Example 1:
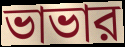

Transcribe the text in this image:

ভাভার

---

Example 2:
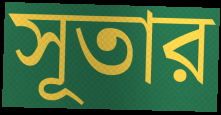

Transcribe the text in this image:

সূতার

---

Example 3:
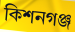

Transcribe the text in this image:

কিশনগঞ্জ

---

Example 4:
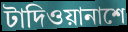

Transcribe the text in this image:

টাদিওয়ানাশে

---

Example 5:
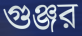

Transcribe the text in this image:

গুঞ্জর